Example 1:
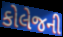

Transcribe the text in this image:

કોલેજની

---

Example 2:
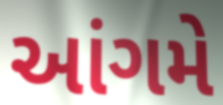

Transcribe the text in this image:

આંગમે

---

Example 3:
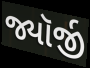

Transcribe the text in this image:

જ્યૉર્જી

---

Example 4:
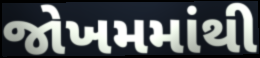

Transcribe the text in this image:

જોખમમાંથી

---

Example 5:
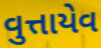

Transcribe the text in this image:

વુત્તાયેવ